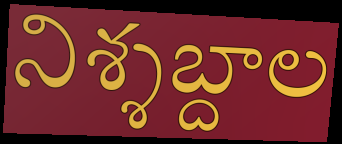
నిశ్శబ్దాల